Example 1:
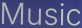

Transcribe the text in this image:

Music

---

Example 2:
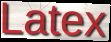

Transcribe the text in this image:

Latex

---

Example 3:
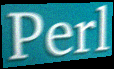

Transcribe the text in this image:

Perl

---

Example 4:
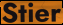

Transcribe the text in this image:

Stier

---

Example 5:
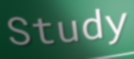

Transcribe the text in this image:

Study